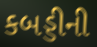
કબડ્ડીની